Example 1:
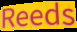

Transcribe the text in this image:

Reeds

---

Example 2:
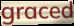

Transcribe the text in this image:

graced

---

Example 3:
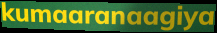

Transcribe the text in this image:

kumaaranaagiya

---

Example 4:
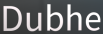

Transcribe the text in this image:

Dubhe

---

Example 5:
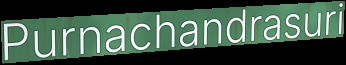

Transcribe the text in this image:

Purnachandrasuri